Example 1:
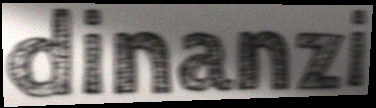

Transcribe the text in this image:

dinanzi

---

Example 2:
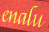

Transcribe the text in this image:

enalu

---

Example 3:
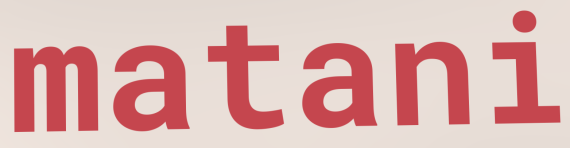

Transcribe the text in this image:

matani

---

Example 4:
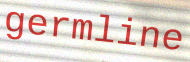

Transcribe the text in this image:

germline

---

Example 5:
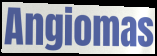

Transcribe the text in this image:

Angiomas